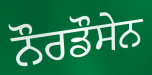
ਨੌਰਡੌਸੇਨ